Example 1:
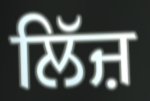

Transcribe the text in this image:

ਲਿੱਜ਼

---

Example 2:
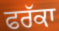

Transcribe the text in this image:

ਫਰੱਕਾ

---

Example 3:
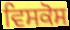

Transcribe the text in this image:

ਵਿਸਕੋਸ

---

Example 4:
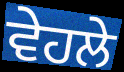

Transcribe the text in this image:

ਵੇਹਲੇ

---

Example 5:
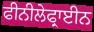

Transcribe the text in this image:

ਫੀਨੀਲੇਫ੍ਰਾਈਨ